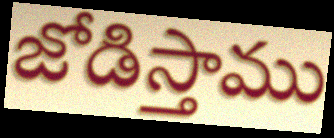
జోడిస్తాము